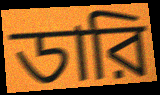
ডারি